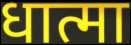
धात्मा